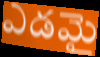
ఎడమై